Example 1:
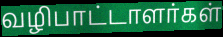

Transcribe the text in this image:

வழிபாட்டாளர்கள்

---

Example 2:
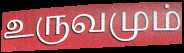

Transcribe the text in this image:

உருவமும்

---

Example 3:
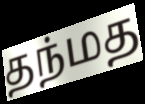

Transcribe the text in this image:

தந்மத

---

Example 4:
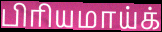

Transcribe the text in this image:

பிரியமாய்க்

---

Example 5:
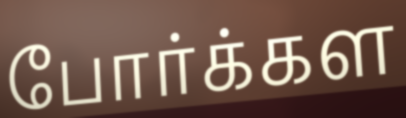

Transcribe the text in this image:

போர்க்கள